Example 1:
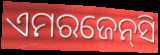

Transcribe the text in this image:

ଏମରଜେନ୍‌ସି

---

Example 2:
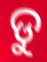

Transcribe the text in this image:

ଡୁ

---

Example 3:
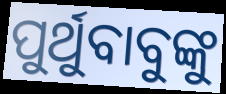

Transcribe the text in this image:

ପୁର୍ଥୁବାବୁଙ୍କୁ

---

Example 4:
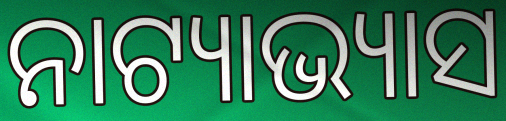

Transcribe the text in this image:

ନାଟ୍ୟାଭ୍ୟାସ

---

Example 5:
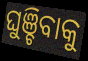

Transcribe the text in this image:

ଘୁଞ୍ଚିବାକୁ